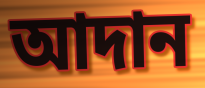
আদান